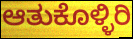
ಆತುಕೊಳ್ಳಿರಿ